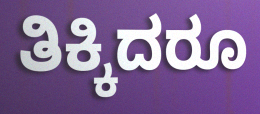
ತಿಕ್ಕಿದರೂ